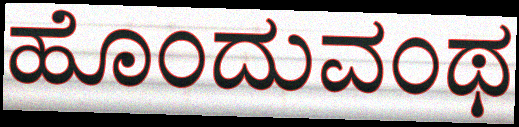
ಹೊಂದುವಂಥ